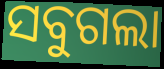
ସବୁଗଲା